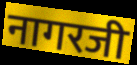
नागरजी